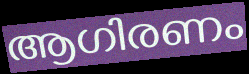
ആഗിരണം